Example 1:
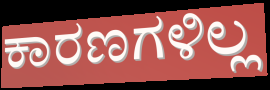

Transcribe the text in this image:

ಕಾರಣಗಳಿಲ್ಲ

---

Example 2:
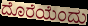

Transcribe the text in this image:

ದೊರೆಯೆಂದು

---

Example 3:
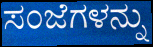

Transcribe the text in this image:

ಸಂಜೆಗಳನ್ನು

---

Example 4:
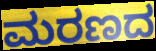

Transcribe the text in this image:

ಮರಣದ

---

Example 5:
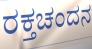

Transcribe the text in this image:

ರಕ್ತಚಂದನ